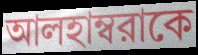
আলহাম্বরাকে